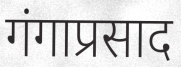
गंगाप्रसाद